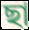
ছা